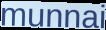
munnai